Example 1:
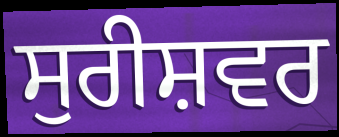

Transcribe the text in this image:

ਸੁਰੀਸ਼ਵਰ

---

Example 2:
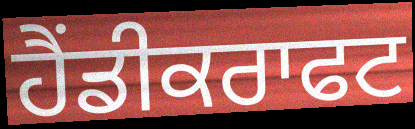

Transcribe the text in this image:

ਹੈਂਡੀਕਰਾਫਟ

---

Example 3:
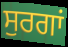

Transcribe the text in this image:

ਸੁਰਗਾਂ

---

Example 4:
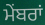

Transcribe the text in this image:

ਮੇਂਬਰਾਂ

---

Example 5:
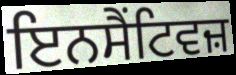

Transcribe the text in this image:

ਇਨਸੈਂਟਿਵਜ਼